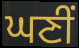
ਘਣੀਂ